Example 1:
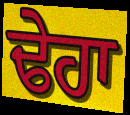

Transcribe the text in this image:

ਢੇਹਾ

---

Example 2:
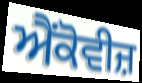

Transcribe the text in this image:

ਐਂਕੋਵੀਜ਼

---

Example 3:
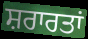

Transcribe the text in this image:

ਸ਼ਰਾਰਤਾਂ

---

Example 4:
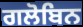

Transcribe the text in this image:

ਗਲੋਬਿਨ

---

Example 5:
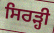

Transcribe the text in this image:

ਸਿਰੜ੍ਹੀ